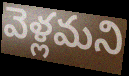
వెళ్లమని